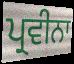
ਪ੍ਰਵੀਨਾ